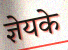
ज्ञेयके